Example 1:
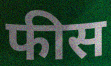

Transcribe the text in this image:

फीस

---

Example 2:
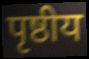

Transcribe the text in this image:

पृष्ठीय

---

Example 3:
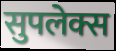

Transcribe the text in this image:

सुपलेक्स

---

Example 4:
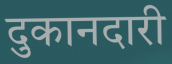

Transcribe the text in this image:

दुकानदारी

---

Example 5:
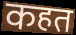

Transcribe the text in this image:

कहत